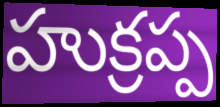
హుక్రప్ప